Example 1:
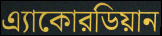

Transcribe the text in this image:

এ্যাকোরডিয়ান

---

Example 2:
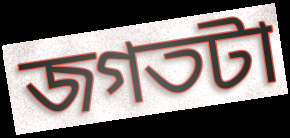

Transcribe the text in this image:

জগতটা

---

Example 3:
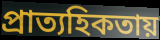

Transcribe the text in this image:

প্রাত্যহিকতায়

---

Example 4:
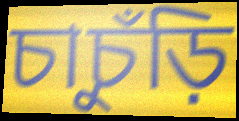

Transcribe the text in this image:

চাচুঁড়ি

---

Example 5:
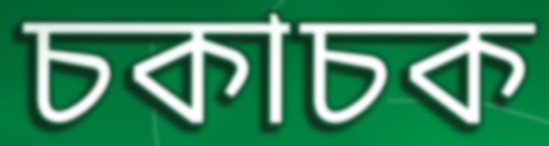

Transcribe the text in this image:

চকাচক